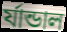
র্যান্ডাল